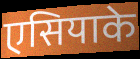
एसियाके